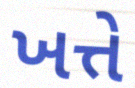
ખત્તે